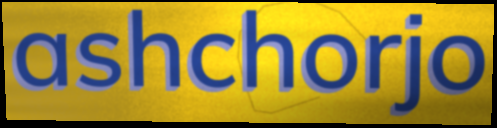
ashchorjo